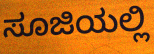
ಸೂಜಿಯಲ್ಲಿ